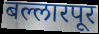
बल्लारपूर